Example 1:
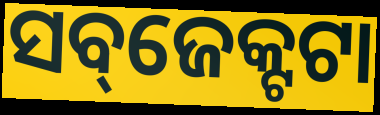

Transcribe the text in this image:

ସବ୍‌ଜେକ୍ଟଟା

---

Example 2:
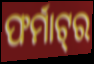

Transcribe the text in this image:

ଫର୍ମାଟ୍‌ର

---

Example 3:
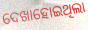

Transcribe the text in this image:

ଦେଖାହୋଇଥିଲା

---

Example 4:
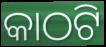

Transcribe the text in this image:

କାଠଟି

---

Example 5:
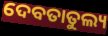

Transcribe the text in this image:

ଦେବତାତୁଲ୍ୟ